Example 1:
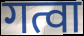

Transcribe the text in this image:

गत्वा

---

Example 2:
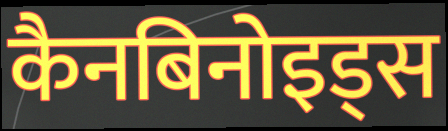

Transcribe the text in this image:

कैनबिनोइड्स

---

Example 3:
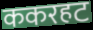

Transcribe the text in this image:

ककरहट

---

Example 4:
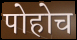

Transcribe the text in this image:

पोहोच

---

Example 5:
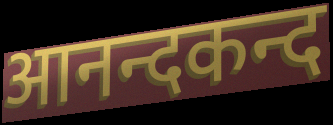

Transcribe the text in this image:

आनन्दकन्द